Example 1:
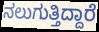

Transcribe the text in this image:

ನಲುಗುತ್ತಿದ್ದಾರೆ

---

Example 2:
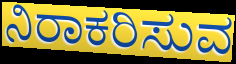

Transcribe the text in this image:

ನಿರಾಕರಿಸುವ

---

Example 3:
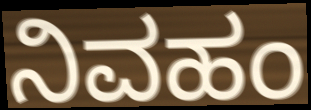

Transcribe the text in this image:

ನಿವಹಂ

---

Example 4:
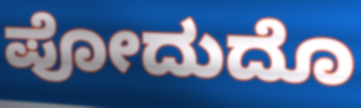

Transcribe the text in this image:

ಪೋದುದೊ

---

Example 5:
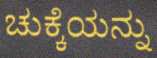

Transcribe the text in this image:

ಚುಕ್ಕೆಯನ್ನು